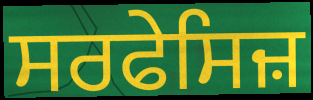
ਸਰਫੇਸਿਜ਼